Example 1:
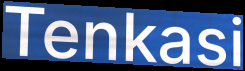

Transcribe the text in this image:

Tenkasi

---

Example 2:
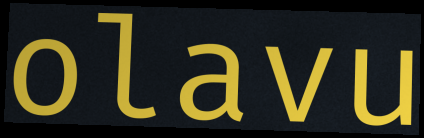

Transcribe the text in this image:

olavu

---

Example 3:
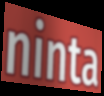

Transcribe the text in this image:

ninta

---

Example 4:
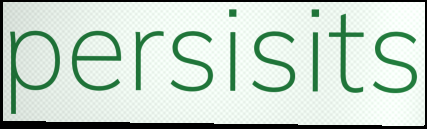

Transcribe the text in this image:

persisits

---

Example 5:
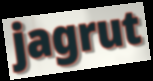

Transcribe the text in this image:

jagrut